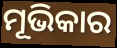
ମୂଭିକାର